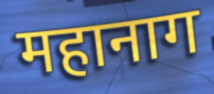
महानाग